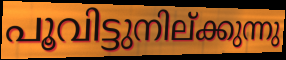
പൂവിട്ടുനില്ക്കുന്നു